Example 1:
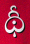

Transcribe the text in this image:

థీ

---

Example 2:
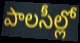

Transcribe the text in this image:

పాలసీల్లో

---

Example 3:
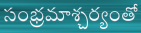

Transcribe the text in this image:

సంభ్రమాశ్చర్యంతో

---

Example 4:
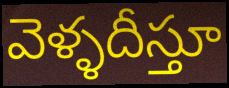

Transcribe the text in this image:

వెళ్ళదీస్తూ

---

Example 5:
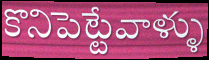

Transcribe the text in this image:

కొనిపెట్టేవాళ్ళు